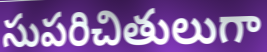
సుపరిచితులుగా